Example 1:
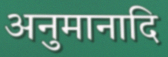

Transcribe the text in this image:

अनुमानादि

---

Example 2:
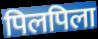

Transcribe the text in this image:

पिलपिला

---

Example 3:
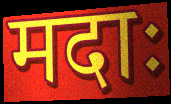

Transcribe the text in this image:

मदाः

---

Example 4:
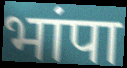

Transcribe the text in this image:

भांपा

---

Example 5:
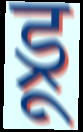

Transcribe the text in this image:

ड्रू